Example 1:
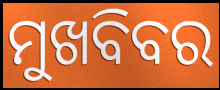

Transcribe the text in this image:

ମୁଖବିବର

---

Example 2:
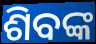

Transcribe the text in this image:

ଶିବଙ୍କ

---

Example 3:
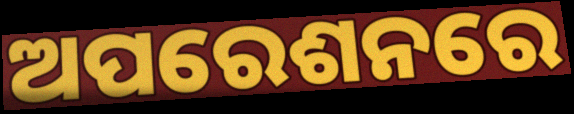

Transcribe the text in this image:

ଅପରେଶନରେ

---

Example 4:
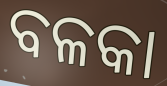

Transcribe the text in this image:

ବଳକା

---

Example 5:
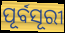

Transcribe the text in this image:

ପୂର୍ବସୂରୀ